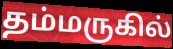
தம்மருகில்